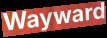
Wayward